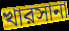
খারসানা